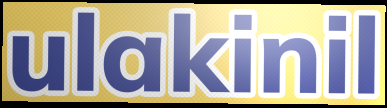
ulakinil